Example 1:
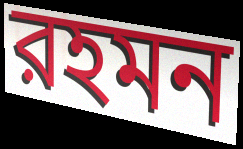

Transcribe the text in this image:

রহমন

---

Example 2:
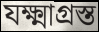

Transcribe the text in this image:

যক্ষ্মাগ্রস্ত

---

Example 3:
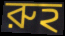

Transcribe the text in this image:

রুহ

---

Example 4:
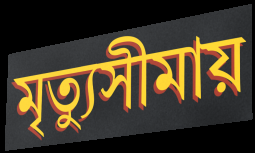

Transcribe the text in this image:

মৃত্যুসীমায়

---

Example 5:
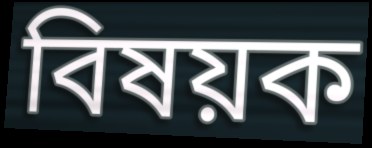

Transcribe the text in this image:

বিষয়ক